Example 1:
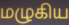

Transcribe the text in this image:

மழுகிய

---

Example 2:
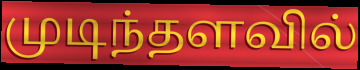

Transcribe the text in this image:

முடிந்தளவில்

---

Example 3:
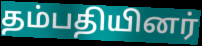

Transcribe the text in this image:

தம்பதியினர்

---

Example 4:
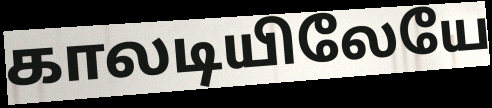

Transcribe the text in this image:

காலடியிலேயே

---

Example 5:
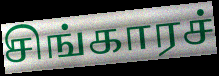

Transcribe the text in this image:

சிங்காரச்